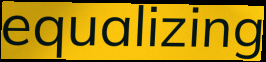
equalizing